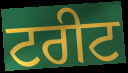
ਟਰੀਟ